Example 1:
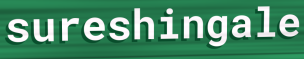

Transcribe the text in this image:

sureshingale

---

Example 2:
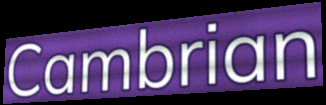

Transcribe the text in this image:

Cambrian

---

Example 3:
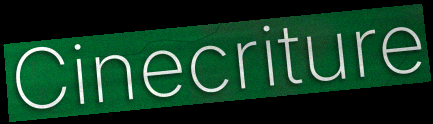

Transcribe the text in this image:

Cinecriture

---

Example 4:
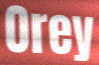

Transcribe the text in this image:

Orey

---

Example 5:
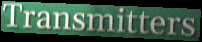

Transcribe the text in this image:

Transmitters